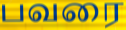
பவரை